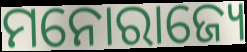
ମନୋରାଜ୍ୟେ